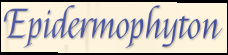
Epidermophyton